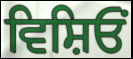
ਵਿਸ਼ਿਓਂ